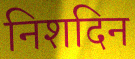
निशदिन